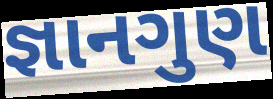
જ્ઞાનગુણ